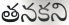
తనకని